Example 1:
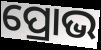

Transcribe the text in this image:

ପ୍ରୋଭ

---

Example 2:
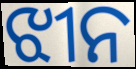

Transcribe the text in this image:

ଝୀନ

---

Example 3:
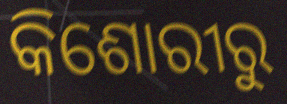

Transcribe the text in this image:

କିଶୋରୀରୁ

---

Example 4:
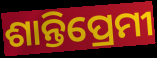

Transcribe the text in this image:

ଶାନ୍ତିପ୍ରେମୀ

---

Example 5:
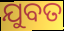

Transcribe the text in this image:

ଯୁବତ